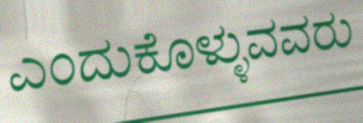
ಎಂದುಕೊಳ್ಳುವವರು